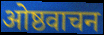
ओष्ठवाचन